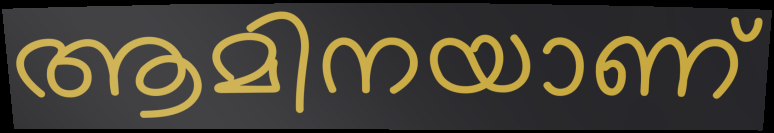
ആമിനയാണ്